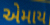
એમાય